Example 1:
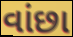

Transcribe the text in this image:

વાંછા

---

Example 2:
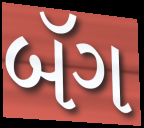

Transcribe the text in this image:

બૅગ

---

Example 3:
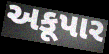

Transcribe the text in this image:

અકૂપાર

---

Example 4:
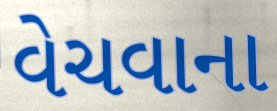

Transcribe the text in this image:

વેચવાના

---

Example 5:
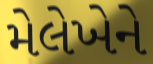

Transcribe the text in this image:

મેલેખેને